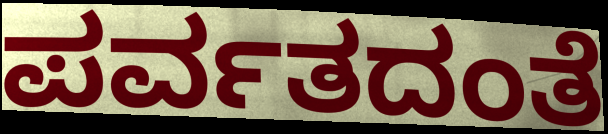
ಪರ್ವತದಂತೆ